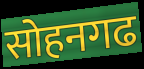
सोहनगढ